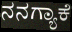
ನನಗ್ಯಾಕೆ